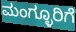
ಮಂಗ್ಳೂರಿಗೆ